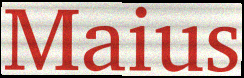
Maius